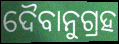
ଦୈବାନୁଗ୍ରହ